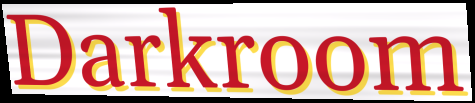
Darkroom